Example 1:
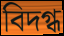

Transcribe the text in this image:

বিদগ্ধ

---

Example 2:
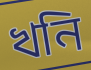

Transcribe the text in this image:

খনি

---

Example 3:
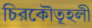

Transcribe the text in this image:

চিরকৌতূহলী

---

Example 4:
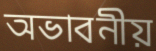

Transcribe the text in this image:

অভাবনীয়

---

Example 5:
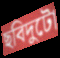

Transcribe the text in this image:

ছবিদুটো